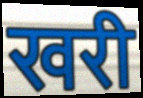
खरी